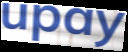
upay